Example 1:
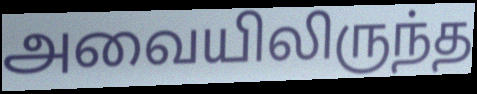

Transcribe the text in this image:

அவையிலிருந்த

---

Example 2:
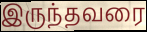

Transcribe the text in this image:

இருந்தவரை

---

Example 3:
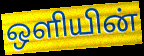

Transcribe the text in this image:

ஒளியின்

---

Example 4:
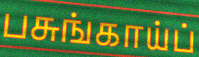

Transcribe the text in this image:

பசுங்காய்ப்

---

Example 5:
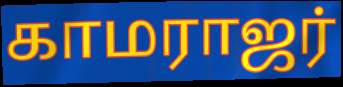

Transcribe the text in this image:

காமராஜர்